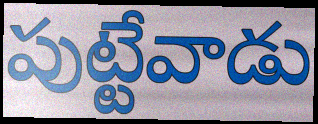
పుట్టేవాడు